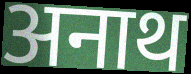
अनाथ